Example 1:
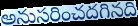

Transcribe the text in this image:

అనుసరించదగినది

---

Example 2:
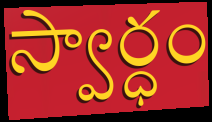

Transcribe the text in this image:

స్వార్ధం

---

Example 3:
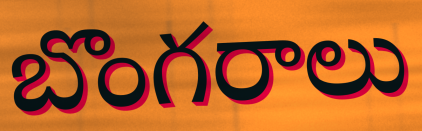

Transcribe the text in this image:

బొంగరాలు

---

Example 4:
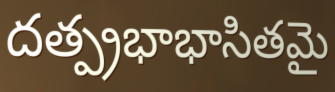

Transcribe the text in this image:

దత్ప్రభాభాసితమై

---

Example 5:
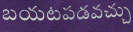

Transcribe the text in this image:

బయటపడవచ్చు